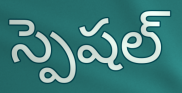
స్పెషల్